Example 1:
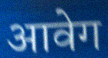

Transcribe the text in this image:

आवेग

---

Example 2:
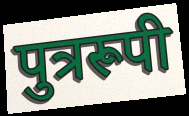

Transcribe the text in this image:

पुत्ररूपी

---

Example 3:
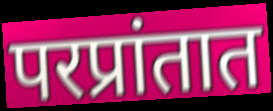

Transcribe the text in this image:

परप्रांतात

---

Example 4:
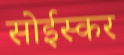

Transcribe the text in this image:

सोईस्कर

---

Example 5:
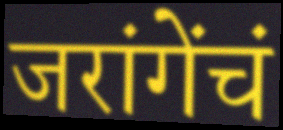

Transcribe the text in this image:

जरांगेंचं